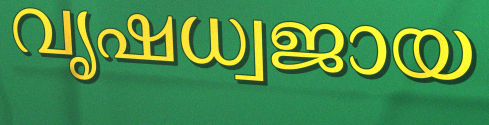
വൃഷധ്വജായ